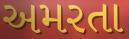
અમરતા